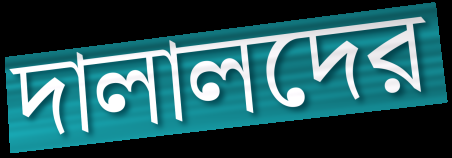
দালালদের